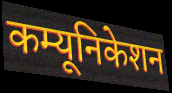
कम्यूनिकेशन